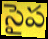
సైప